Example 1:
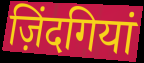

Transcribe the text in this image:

ज़िंदगियां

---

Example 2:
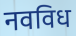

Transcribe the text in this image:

नवविध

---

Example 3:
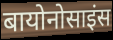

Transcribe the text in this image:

बायोनोसाइंस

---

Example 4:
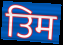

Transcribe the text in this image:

उिम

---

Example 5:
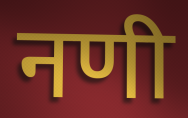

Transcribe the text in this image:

नणी